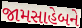
જામસાહેબને